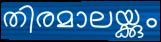
തിരമാലയ്ക്കും